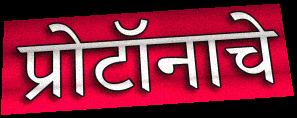
प्रोटॉनाचे